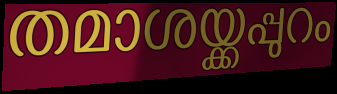
തമാശയ്ക്കപ്പുറം